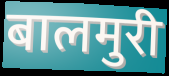
बालमुरी